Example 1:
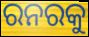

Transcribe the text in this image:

ରନରକୁ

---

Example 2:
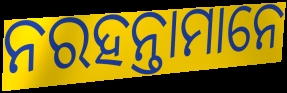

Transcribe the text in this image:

ନରହନ୍ତାମାନେ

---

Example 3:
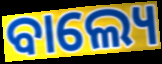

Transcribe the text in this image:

ବାଲ୍ୟେ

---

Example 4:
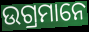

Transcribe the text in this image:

ଉଗ୍ରମାନେ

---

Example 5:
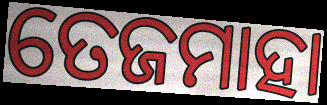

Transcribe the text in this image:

ତେଜମାହା